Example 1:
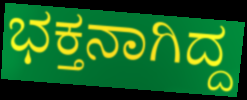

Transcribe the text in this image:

ಭಕ್ತನಾಗಿದ್ದ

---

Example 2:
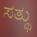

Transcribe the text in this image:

ಸತ್ಥು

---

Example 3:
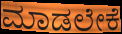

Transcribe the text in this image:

ಮಾಡಲೇಕೆ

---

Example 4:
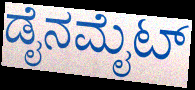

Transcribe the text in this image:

ಡೈನಮೈಟ್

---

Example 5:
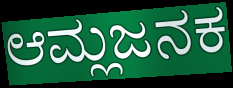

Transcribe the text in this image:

ಆಮ್ಲಜನಕ